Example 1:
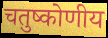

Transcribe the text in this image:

चतुष्कोणीय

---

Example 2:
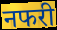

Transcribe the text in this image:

नफरी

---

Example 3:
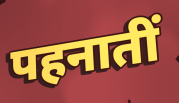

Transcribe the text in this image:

पहनातीं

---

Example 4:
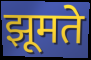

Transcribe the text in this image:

झूमते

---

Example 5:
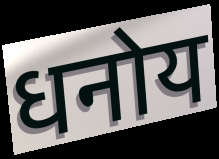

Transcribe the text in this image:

धनोय